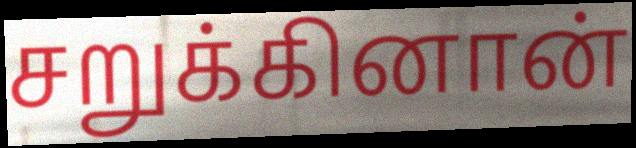
சறுக்கினான்